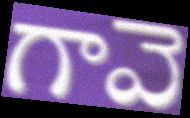
గావె